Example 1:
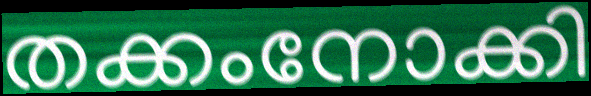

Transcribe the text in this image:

തക്കംനോക്കി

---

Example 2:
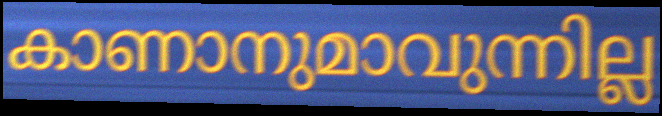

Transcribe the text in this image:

കാണാനുമാവുന്നില്ല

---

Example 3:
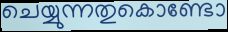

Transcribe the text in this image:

ചെയ്യുന്നതുകൊണ്ടോ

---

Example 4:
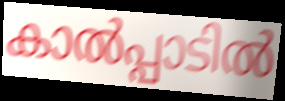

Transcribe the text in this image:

കാൽപ്പാടിൽ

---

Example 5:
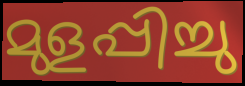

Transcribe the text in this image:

മുളപ്പിച്ചു